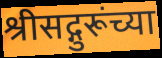
श्रीसद्गुरूंच्या